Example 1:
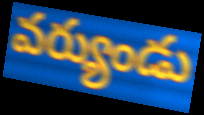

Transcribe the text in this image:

వర్యుండు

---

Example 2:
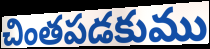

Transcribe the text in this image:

చింతపడకుము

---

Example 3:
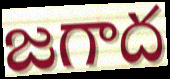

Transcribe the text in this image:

జగాద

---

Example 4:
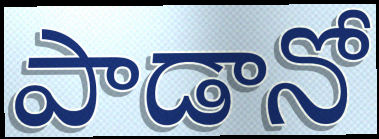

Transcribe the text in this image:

పాడానో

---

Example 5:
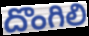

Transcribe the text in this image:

దొంగిలి